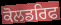
ਕੋਲਡਰਿਫ